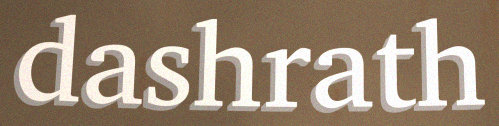
dashrath